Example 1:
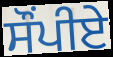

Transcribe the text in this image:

ਸੌਂਪੀਏ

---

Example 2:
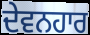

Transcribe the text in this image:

ਦੇਵਨਹਾਰ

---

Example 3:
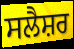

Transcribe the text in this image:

ਸਲੈਸ਼ਰ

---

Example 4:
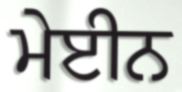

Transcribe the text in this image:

ਮੇਈਨ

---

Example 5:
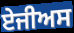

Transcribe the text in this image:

ਏਜੀਅਸ